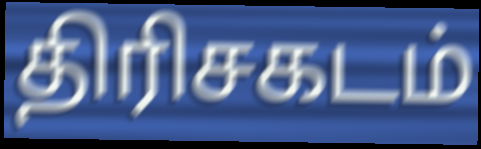
திரிசகடம்